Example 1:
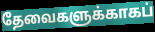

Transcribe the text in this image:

தேவைகளுக்காகப்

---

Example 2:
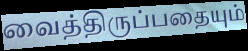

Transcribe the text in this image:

வைத்திருப்பதையும்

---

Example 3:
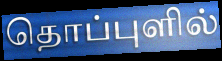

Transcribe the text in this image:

தொப்புளில்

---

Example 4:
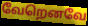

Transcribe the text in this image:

வேறெனவே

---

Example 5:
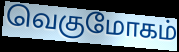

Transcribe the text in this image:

வெகுமோகம்